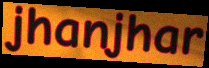
jhanjhar